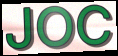
JOC